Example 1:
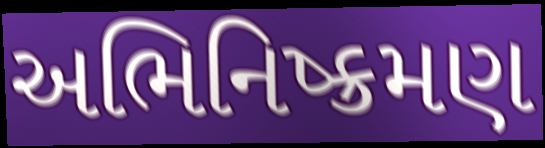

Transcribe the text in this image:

અભિનિષ્ક્રમણ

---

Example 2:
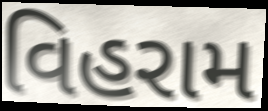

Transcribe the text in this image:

વિહરામ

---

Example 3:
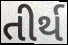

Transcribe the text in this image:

તીર્થ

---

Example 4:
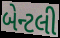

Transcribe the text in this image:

બેન્ટલી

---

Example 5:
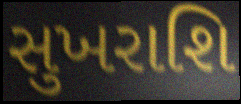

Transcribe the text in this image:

સુખરાશિ